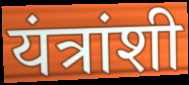
यंत्रांशी